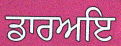
ਡਾਰਅਇ